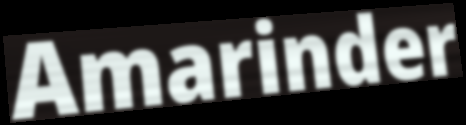
Amarinder